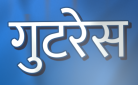
गुटरेस